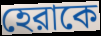
হেরাকে